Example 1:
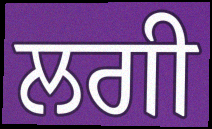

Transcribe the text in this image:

ਲਗੀ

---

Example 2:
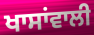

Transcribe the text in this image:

ਖਾਸਾਂਵਾਲੀ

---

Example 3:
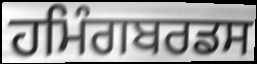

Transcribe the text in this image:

ਹਮਿੰਗਬਰਡਸ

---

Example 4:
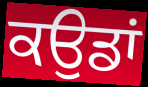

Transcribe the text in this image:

ਕਉਡਾਂ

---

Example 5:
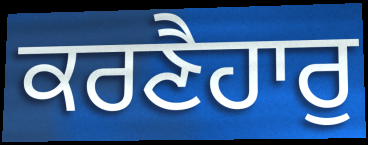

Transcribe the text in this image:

ਕਰਣੈਹਾਰੁ